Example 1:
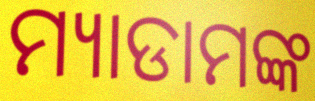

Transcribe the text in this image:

ମ୍ୟାଡାମଙ୍କ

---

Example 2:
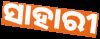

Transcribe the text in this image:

ସାହାରୀ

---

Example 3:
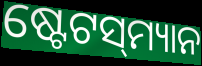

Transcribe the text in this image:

ଷ୍ଟେଟସ୍‌ମ୍ୟାନ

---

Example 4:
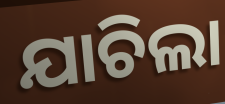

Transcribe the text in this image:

ଯାଚିଲା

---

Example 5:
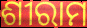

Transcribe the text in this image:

ଶୀରାମ